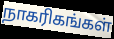
நாகரிகங்கள்